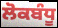
ਲੋਕਬੰਧੂ